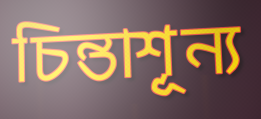
চিন্তাশূন্য